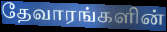
தேவாரங்களின்